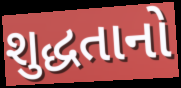
શુદ્ધતાનો